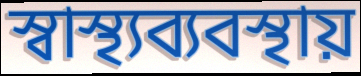
স্বাস্থ্যব্যবস্থায়